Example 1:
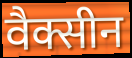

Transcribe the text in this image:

वैक्सीन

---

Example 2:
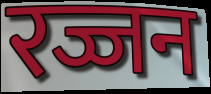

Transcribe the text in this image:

रज्जन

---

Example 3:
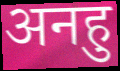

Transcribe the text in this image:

अनहु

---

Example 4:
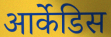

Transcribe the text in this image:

आर्केडिस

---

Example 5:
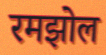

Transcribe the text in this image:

रमझोल